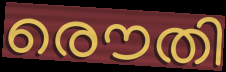
രൌതി